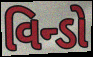
વિન્ડો